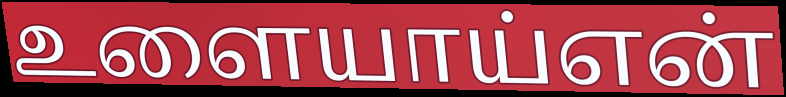
உளையாய்என்